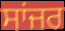
ਸਾਂਜਰ